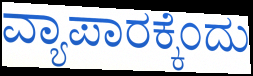
ವ್ಯಾಪಾರಕ್ಕೆಂದು